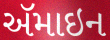
ઍમાઇન